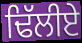
ਢਿੱਲੀਏ